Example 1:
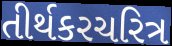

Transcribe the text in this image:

તીર્થકરચરિત્ર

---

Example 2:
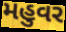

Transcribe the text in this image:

મહુવર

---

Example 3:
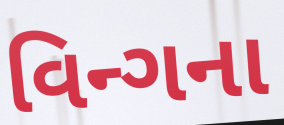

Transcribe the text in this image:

વિન્ગના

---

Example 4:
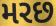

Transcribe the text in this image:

મરછ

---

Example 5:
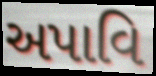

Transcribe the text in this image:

અપાવિ